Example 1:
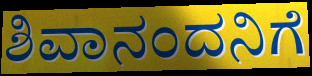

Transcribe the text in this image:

ಶಿವಾನಂದನಿಗೆ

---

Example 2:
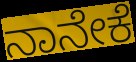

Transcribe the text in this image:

ನಾನೇಕೆ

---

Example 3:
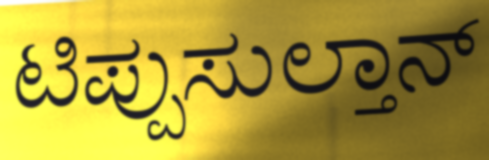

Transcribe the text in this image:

ಟಿಪ್ಪುಸುಲ್ತಾನ್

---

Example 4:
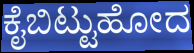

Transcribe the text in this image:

ಕೈಬಿಟ್ಟುಹೋದ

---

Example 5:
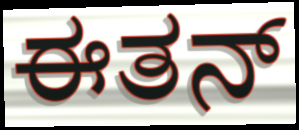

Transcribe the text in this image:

ಈತನ್